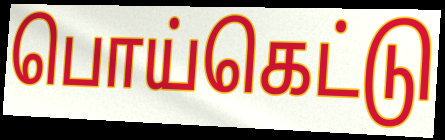
பொய்கெட்டு